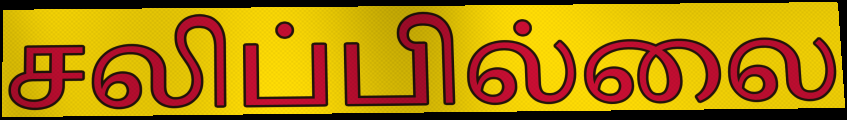
சலிப்பில்லை